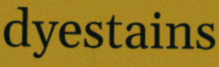
dyestains